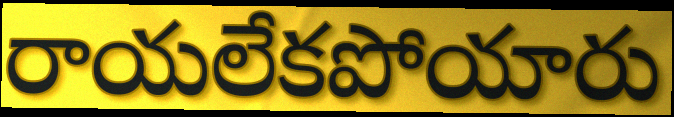
రాయలేకపోయారు